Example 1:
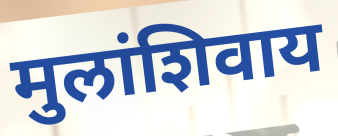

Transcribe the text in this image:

मुलांशिवाय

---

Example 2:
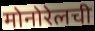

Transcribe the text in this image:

मोनोरेलची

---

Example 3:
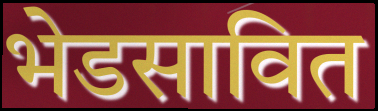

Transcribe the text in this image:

भेडसावित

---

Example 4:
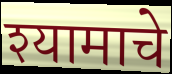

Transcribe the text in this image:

श्यामाचे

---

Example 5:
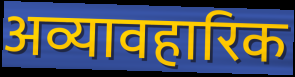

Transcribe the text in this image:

अव्यावहारिक